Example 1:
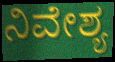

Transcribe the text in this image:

ನಿವೇಶ್ಯ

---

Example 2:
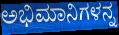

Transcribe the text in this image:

ಅಭಿಮಾನಿಗಳನ್ನ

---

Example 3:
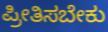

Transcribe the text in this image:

ಪ್ರೀತಿಸಬೇಕು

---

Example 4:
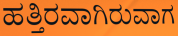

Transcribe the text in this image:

ಹತ್ತಿರವಾಗಿರುವಾಗ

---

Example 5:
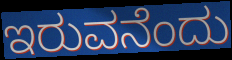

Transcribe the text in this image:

ಇರುವನೆಂದು